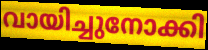
വായിച്ചുനോക്കി